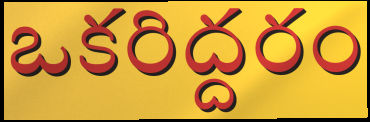
ఒకరిద్దరం